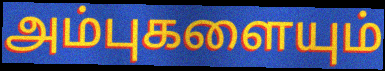
அம்புகளையும்